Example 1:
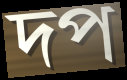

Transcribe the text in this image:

দপ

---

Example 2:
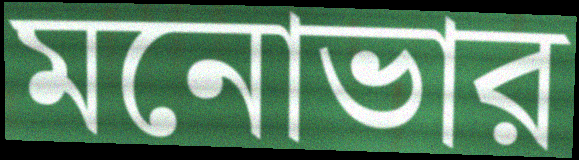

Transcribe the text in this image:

মনোভার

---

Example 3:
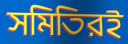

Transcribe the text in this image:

সমিতিরই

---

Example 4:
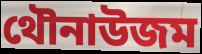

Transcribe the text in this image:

থৌনাউজম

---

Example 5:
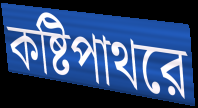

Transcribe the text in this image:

কষ্টিপাথরে